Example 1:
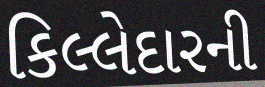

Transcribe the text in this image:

કિલ્લેદારની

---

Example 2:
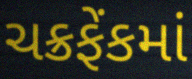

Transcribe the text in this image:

ચક્રફેંકમાં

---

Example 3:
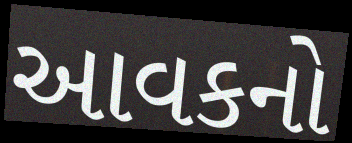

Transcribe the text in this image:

આવકનો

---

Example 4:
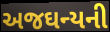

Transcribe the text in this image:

અજઘન્યની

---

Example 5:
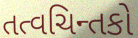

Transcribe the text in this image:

તત્વચિન્તકો